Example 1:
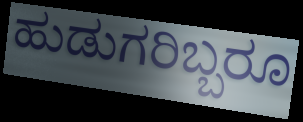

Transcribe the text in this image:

ಹುಡುಗರಿಬ್ಬರೂ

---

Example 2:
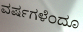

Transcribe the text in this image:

ವರ್ಷಗಳೆಂದೂ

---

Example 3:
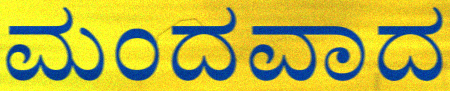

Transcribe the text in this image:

ಮಂದವಾದ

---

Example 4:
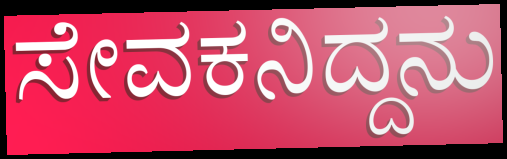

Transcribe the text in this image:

ಸೇವಕನಿದ್ದನು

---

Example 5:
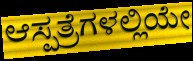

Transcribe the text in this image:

ಆಸ್ಪತ್ರೆಗಳಲ್ಲಿಯೇ